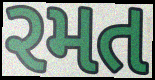
રમત